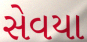
સેવયા